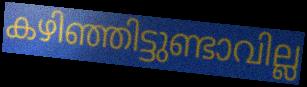
കഴിഞ്ഞിട്ടുണ്ടാവില്ല